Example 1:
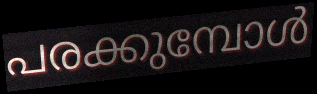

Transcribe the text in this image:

പരക്കുമ്പോൾ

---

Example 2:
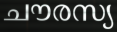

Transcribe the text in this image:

ചൗരസ്യ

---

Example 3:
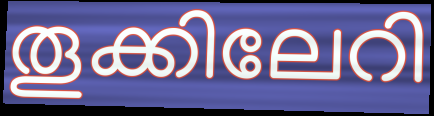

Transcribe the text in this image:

തൂക്കിലേറി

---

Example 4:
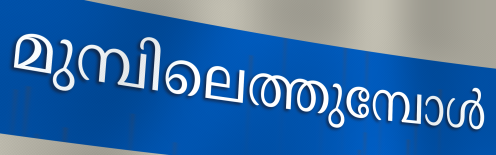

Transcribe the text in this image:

മുമ്പിലെത്തുമ്പോൾ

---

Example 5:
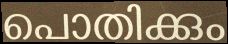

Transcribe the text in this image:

പൊതിക്കും